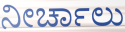
ನೀರ್ಚಾಲು